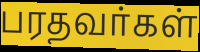
பரதவர்கள்